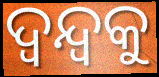
ଦ୍ୱନ୍ଦ୍ୱକୁ